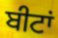
ਬੀਟਾਂ